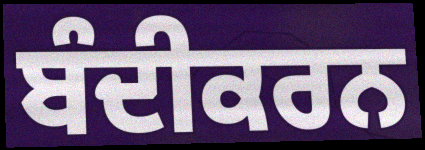
ਬੰਦੀਕਰਨ